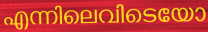
എന്നിലെവിടെയോ